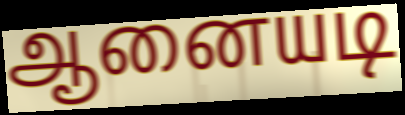
ஆனையடி